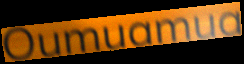
Oumuamua